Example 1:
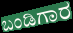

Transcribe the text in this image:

ಬಂಡಿಗಾರ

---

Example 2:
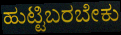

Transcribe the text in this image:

ಹುಟ್ಟಿಬರಬೇಕು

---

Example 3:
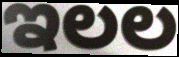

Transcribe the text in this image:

ಇಲಲ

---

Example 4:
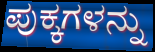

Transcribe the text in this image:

ಪುಕ್ಕಗಳನ್ನು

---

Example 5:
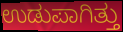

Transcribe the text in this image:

ಉಡುಪಾಗಿತ್ತು